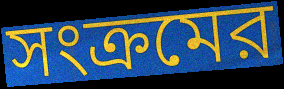
সংক্রমের